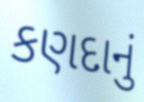
કણદાનું